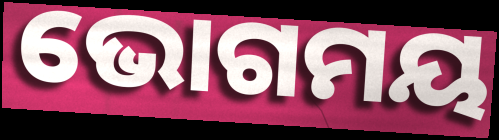
ଭୋଗମୟ